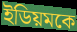
ইডিয়মকে